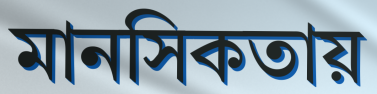
মানসিকতায়